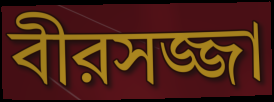
বীরসজ্জা